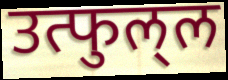
उत्फुल्ल